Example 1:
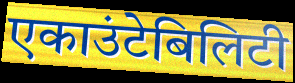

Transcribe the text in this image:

एकाउंटेबिलिटी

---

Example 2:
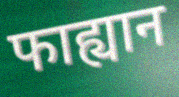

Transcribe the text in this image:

फाह्यान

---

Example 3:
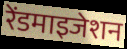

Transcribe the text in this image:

रेंडमाइजेशन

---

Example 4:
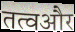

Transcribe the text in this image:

तत्वऔर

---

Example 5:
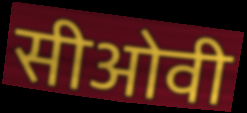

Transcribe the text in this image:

सीओवी